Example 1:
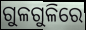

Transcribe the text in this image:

ଗୁଳଗୁଳିରେ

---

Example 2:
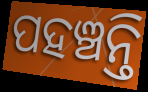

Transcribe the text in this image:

ପହଞ୍ଚନ୍ତି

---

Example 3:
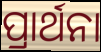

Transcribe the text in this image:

ପ୍ରାର୍ଥନା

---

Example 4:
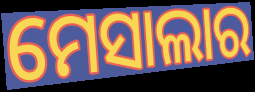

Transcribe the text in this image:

ମେସାଲାର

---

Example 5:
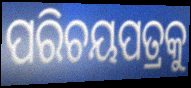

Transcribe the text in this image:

ପରିଚୟପତ୍ରକୁ